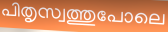
പിതൃസ്വത്തുപോലെ